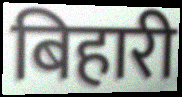
बिहारी